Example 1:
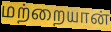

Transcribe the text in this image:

மற்றையான்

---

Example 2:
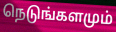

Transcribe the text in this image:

நெடுங்களமும்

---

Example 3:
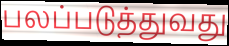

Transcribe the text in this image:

பலப்படுத்துவது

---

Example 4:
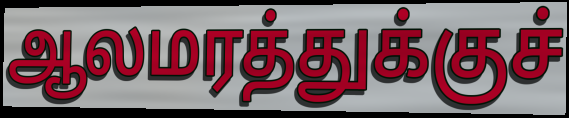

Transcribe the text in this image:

ஆலமரத்துக்குச்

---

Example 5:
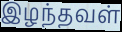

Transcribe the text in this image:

இழந்தவள்